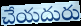
చేయదురు